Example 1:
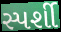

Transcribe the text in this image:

સ્પર્શી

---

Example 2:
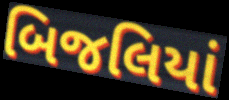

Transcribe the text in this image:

બિજલિયાં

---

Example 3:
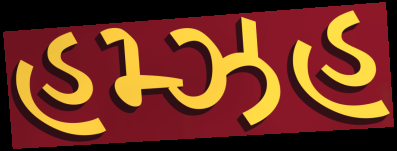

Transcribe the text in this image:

હમ્ઝહ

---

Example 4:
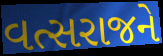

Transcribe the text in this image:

વત્સરાજને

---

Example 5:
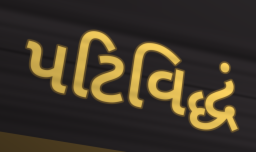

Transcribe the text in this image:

પટિવિદ્ધં